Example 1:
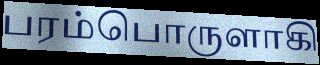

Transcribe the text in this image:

பரம்பொருளாகி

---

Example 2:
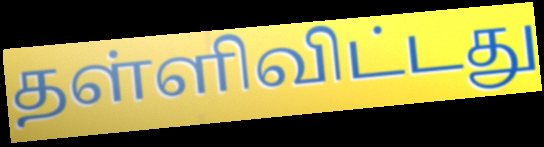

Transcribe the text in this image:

தள்ளிவிட்டது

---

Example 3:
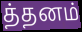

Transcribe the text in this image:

த்தனம்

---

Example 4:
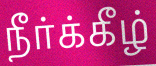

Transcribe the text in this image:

நீர்க்கீழ்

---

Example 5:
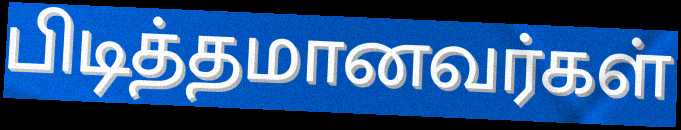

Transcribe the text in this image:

பிடித்தமானவர்கள்